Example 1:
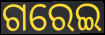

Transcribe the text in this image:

ଗରେଇ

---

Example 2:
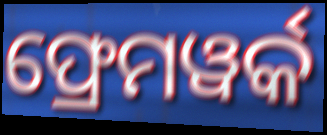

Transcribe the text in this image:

ଫ୍ରେମୱର୍କ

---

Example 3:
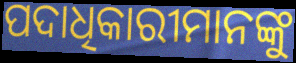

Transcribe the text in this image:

ପଦାଧିକାରୀମାନଙ୍କୁ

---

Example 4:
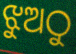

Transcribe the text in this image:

ଝୁଅଠୁ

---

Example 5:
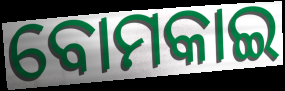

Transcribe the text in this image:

ବୋମକାଇ